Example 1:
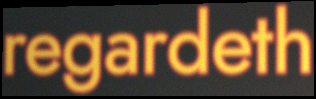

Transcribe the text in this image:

regardeth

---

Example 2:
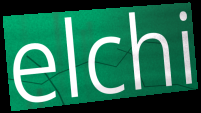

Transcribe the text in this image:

elchi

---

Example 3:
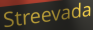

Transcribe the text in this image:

Streevada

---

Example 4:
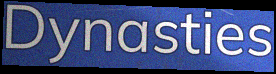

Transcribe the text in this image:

Dynasties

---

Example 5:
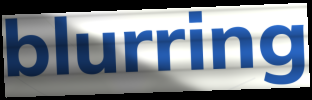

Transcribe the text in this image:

blurring